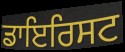
ਡਾਇਰਿਸਟ